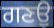
ਗਣਉ